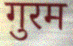
गुरम